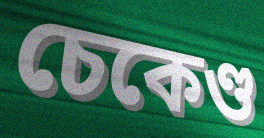
চেকেণ্ড